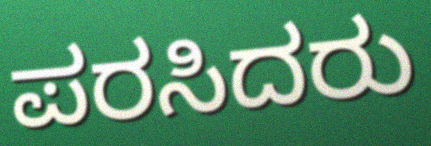
ಪರಸಿದರು